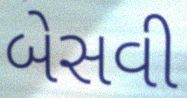
બેસવી